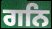
ਗਨਿ